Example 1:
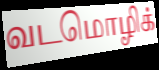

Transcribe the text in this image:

வடமொழிக்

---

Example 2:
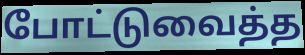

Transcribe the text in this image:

போட்டுவைத்த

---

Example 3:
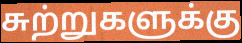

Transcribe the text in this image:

சுற்றுகளுக்கு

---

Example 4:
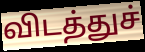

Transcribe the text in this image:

விடத்துச்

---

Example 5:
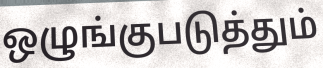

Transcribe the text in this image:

ஒழுங்குபடுத்தும்